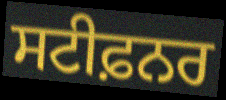
ਸਟੀਫ਼ਨਰ